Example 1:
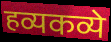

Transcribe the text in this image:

हव्यकव्ये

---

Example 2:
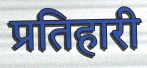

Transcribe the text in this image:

प्रतिहारी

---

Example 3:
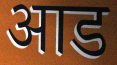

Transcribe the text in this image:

आड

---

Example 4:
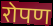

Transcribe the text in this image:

रोपण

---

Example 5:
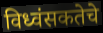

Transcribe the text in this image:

विध्वंसकतेचे